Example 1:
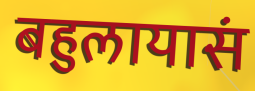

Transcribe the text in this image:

बहुलायासं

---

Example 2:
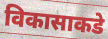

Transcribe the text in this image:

विकासाकडे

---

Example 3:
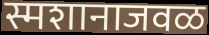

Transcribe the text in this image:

स्मशानाजवळ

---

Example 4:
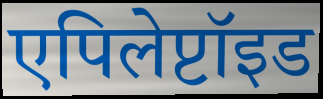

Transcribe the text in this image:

एपिलेप्टॉइड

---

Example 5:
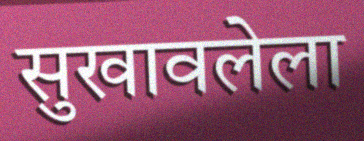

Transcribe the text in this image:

सुखावलेला